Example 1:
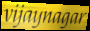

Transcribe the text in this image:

vijaynagar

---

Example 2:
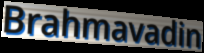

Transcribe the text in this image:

Brahmavadin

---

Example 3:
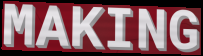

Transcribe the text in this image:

MAKING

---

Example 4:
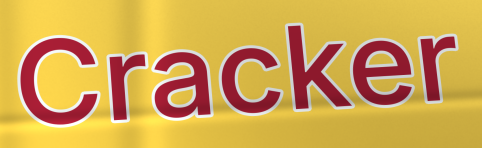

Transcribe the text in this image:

Cracker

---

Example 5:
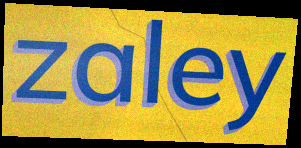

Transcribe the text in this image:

zaley